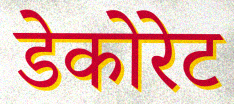
डेकोरेट